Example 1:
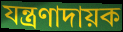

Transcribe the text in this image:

যন্ত্রণাদায়ক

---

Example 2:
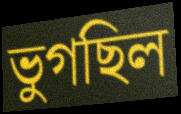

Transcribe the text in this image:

ভুগছিল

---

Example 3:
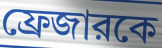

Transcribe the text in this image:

ফ্রেজারকে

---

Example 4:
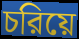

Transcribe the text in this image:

চরিয়ে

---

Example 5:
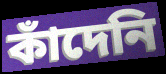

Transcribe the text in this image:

কাঁদেনি